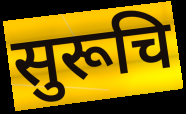
सुरूचि